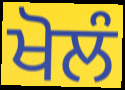
ਖੋਲੰ